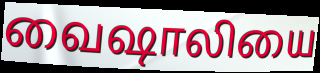
வைஷாலியை